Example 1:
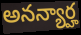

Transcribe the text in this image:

అనన్యార్హ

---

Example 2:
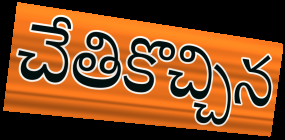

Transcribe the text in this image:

చేతికొచ్చిన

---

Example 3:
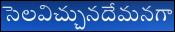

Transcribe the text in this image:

సెలవిచ్చునదేమనగా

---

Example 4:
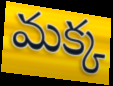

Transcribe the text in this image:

మక్క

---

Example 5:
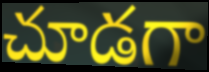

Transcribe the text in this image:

చూడగా